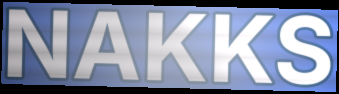
NAKKS